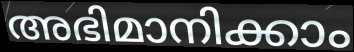
അഭിമാനിക്കാം